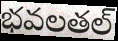
భవలతల్